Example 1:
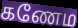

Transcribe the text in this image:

கணேம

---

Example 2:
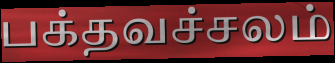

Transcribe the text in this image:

பக்தவச்சலம்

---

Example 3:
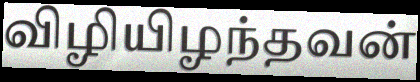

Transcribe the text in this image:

விழியிழந்தவன்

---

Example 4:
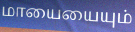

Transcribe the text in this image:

மாயையையும்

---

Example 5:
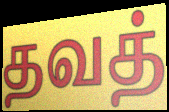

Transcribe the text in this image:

தவத்